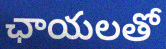
ఛాయలతో